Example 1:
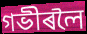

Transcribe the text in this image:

গভীৰলৈ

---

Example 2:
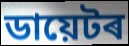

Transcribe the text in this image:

ডায়েটৰ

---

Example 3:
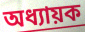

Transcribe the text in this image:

অধ্যায়ক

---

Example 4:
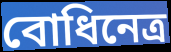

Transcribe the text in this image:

বোধিনেত্ৰ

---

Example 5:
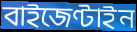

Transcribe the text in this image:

বাইজেণ্টাইন